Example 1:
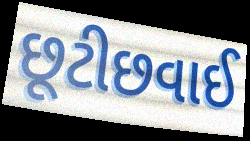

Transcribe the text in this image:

છૂટીછવાઈ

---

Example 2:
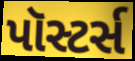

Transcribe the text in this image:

પૉસ્ટર્સ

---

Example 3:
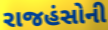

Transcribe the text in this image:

રાજહંસોની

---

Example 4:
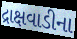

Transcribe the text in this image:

દ્રાક્ષવાડીના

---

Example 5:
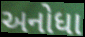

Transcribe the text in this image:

અનોધા